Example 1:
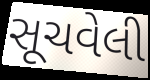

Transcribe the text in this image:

સૂચવેલી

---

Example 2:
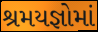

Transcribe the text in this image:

શ્રમયજ્ઞોમાં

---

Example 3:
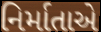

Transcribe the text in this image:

નિર્માતાએ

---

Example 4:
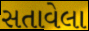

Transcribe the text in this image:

સતાવેલા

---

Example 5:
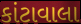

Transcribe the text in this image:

કાંટાવાલા